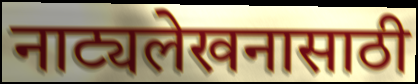
नाट्यलेखनासाठी